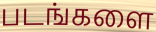
படங்களை